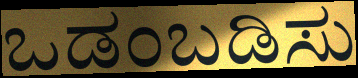
ಒಡಂಬಡಿಸು